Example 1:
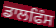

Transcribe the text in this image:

ਡਾਲਫਿੰਸ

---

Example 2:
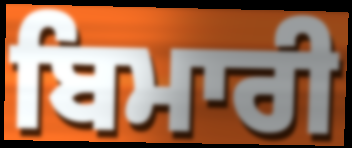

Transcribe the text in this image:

ਬਿਮਾਰੀ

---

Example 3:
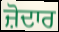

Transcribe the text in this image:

ਜ਼ੋਦਾਰ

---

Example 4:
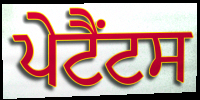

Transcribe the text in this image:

ਪੇਟੈਂਟਸ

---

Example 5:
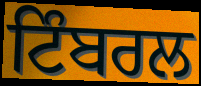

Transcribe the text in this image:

ਟਿੰਬਰਲ